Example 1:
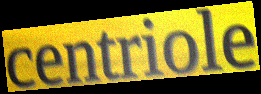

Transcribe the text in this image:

centriole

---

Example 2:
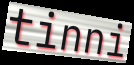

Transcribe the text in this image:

tinni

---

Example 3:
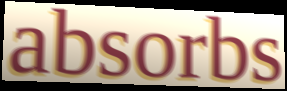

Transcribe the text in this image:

absorbs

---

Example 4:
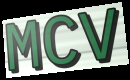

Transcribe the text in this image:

MCV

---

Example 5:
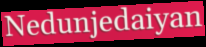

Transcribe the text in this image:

Nedunjedaiyan